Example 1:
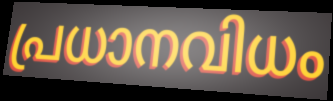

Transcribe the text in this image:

പ്രധാനവിധം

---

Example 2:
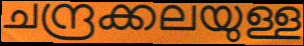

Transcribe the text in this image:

ചന്ദ്രക്കലയുള്ള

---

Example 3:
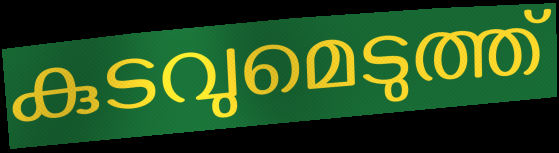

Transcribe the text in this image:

കുടവുമെടുത്ത്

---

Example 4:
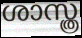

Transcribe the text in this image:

ശാസ്ത്ര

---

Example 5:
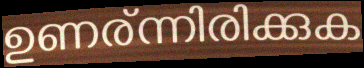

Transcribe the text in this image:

ഉണര്ന്നിരിക്കുക